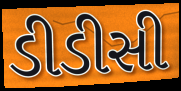
ડીડીસી